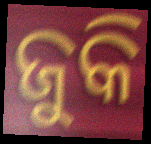
ଜୁକି